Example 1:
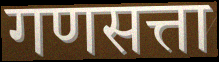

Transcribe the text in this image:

गणसत्ता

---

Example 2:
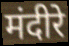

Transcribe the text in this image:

मंदीरे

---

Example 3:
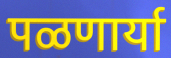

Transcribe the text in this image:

पळणार्या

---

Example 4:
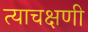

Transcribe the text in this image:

त्याचक्षणी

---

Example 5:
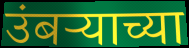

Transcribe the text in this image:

उंबऱ्याच्या